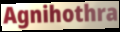
Agnihothra